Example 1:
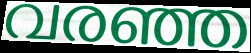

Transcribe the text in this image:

വരഞ്ഞ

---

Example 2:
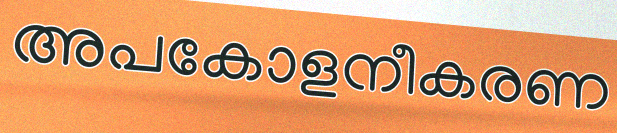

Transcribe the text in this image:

അപകോളനീകരണ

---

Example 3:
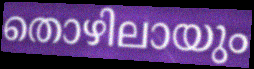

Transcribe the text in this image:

തൊഴിലായും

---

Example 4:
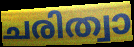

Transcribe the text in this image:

ചരിത്വാ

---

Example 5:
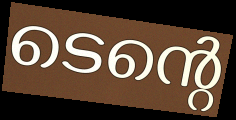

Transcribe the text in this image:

ടെന്റെ